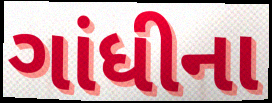
ગાંધીના